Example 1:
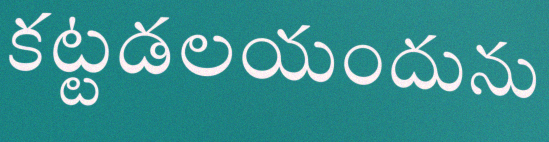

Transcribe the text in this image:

కట్టడలయందును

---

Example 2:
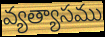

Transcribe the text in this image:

వ్యత్యాసము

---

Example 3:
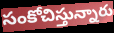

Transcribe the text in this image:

సంకోచిస్తున్నారు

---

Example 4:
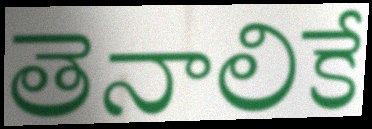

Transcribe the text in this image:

తెనాలికే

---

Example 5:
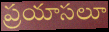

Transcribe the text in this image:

ప్రయాసలూ